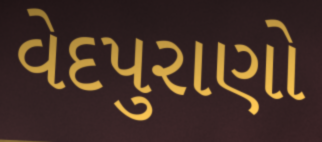
વેદપુરાણો